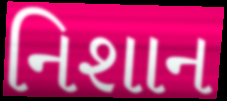
નિશાન